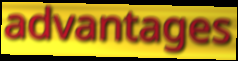
advantages